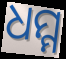
ଧମ୍ମ